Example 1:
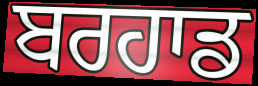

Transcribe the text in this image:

ਬਰਹਾਡ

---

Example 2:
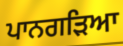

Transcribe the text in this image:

ਪਾਨਗੜਿਆ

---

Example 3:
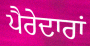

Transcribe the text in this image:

ਪੈਰੇਦਾਰਾਂ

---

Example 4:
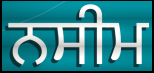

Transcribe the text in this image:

ਨਸੀਮ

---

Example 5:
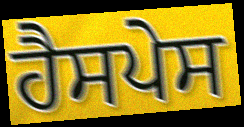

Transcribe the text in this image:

ਹੈਸਪੇਸ